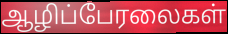
ஆழிப்பேரலைகள்